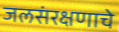
जलसंरक्षणाचे